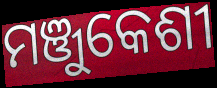
ମଞ୍ଜୁକେଶୀ